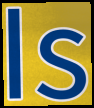
Is